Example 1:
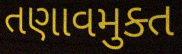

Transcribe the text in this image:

તણાવમુક્ત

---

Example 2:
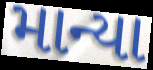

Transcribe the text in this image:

માન્યા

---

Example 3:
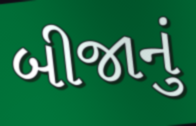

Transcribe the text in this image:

બીજાનું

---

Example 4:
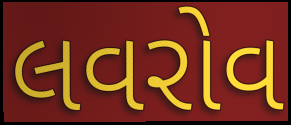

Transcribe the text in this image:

લવરોવ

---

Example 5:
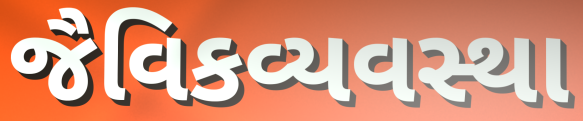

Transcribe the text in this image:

જૈવિકવ્યવસ્થા